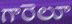
గారెలూ